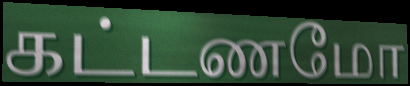
கட்டணமோ